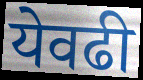
येवढी